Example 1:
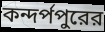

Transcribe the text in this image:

কন্দর্পপুরের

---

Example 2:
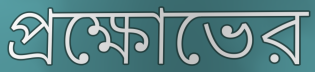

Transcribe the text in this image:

প্রক্ষোভের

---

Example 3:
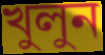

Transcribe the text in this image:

খুলুন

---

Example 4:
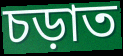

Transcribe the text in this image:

চড়াত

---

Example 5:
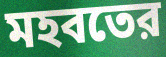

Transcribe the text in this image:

মহবতের